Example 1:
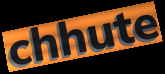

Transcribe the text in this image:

chhute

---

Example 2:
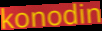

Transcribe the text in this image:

konodin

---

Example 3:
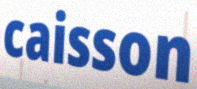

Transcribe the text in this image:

caisson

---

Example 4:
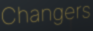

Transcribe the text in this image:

Changers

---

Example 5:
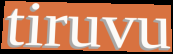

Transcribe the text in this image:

tiruvu